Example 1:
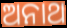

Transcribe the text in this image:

ଅନାଥ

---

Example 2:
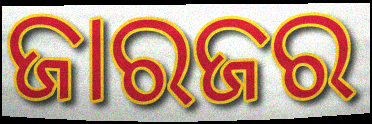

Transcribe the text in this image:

ଜାରଜର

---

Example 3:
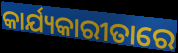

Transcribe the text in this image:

କାର୍ଯ୍ୟକାରୀତାରେ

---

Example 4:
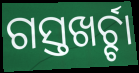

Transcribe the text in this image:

ଗସ୍ତଖର୍ଚ୍ଚା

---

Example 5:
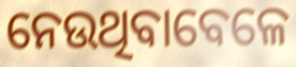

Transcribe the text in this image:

ନେଉଥିବାବେଳେ